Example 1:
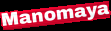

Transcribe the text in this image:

Manomaya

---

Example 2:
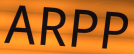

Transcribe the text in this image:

ARPP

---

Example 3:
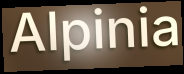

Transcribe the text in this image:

Alpinia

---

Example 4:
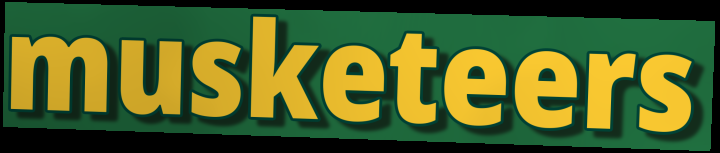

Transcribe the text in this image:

musketeers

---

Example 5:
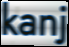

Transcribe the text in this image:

kanj